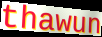
thawun